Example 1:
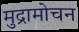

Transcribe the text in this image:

मुद्रामोचन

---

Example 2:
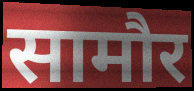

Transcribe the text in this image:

सामौर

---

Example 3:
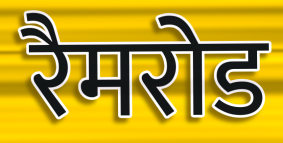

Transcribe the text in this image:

रैमरोड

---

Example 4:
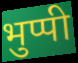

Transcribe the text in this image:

भुप्पी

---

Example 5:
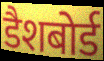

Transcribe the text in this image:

डैशबोर्ड